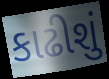
કાઢીશું